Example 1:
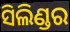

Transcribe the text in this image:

ସିଲିଣ୍ଡର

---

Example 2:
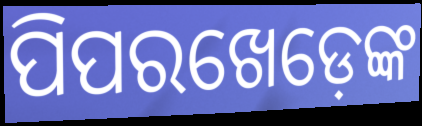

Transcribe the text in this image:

ପିପରଖେଡ଼େଙ୍କ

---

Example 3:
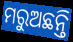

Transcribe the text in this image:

ମରୁଅଛନ୍ତି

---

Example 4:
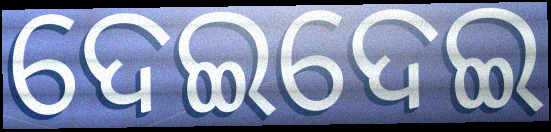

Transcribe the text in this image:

ଦେଇଦେଇ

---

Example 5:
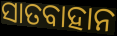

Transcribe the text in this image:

ସାତବାହାନ